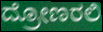
ದ್ರೋಣರಲಿ